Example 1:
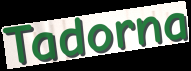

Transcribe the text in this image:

Tadorna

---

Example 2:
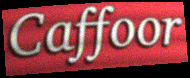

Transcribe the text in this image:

Caffoor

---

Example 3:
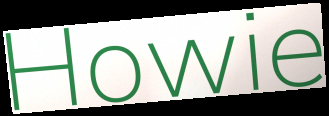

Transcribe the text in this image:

Howie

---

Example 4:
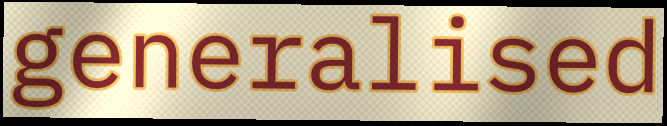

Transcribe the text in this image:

generalised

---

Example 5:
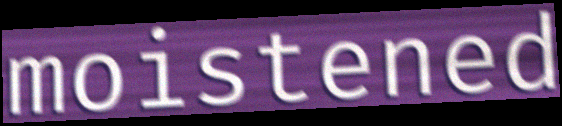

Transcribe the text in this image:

moistened